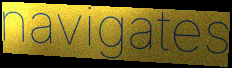
navigates